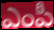
ఎంపీ